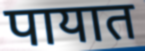
पायात